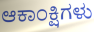
ಆಕಾಂಕ್ಷಿಗಳು